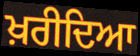
ਖ਼ਰੀਦਿਆ